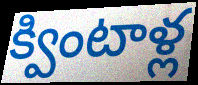
క్వింటాళ్ల